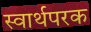
स्वार्थपरक